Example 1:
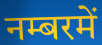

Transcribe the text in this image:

नम्बरमें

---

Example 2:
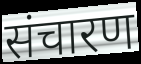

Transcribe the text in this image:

संचारण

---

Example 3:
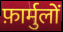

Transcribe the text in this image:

फ़ार्मुलों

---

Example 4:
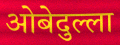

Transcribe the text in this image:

ओबेदुल्ला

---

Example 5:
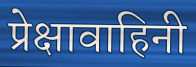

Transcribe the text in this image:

प्रेक्षावाहिनी